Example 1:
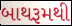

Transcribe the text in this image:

બાથરૂમથી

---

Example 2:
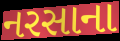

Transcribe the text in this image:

નરસાના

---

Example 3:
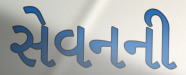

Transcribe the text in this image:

સેવનની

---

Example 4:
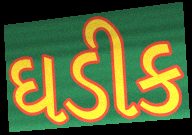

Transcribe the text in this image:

ઘડીક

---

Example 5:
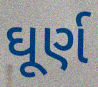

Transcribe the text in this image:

ઘૂર્ણ